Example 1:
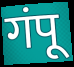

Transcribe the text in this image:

गंपू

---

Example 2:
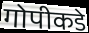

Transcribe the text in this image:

गोपीकडे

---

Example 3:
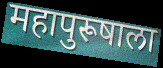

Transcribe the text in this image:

महापुरूषाला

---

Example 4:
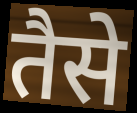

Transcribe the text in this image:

तैसे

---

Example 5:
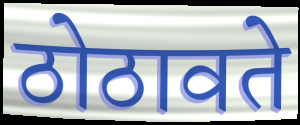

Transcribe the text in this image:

ठोठावते